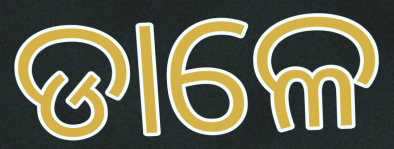
ଡାଳେ